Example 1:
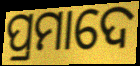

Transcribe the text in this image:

ପ୍ରମାଦେ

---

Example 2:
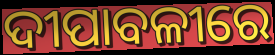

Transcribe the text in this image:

ଦୀପାବଳୀରେ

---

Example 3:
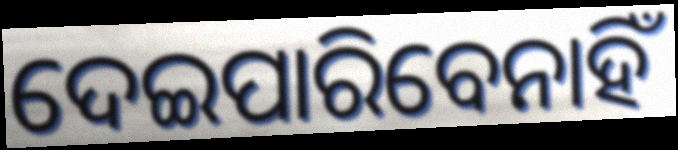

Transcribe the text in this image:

ଦେଇପାରିବେନାହିଁ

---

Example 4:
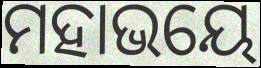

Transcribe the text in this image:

ମହାଭୟେ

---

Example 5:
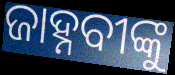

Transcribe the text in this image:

ଜାହ୍ନବୀଙ୍କୁ